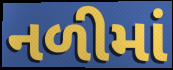
નળીમાં